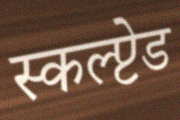
स्कल्प्टेड